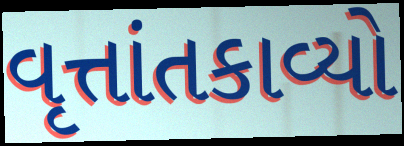
વૃત્તાંતકાવ્યો